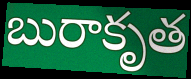
బురాకృత